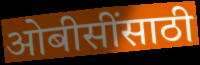
ओबीसींसाठी